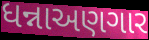
ધન્નાઅણગાર